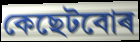
কেছেটবোৰ